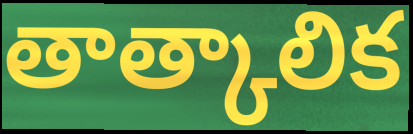
తాత్కాలిక